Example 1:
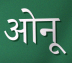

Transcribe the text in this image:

ओनू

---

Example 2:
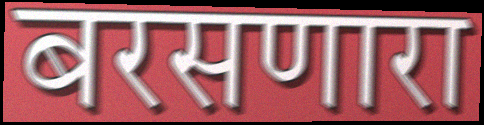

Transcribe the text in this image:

बरसणारा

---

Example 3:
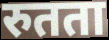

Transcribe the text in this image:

रुतता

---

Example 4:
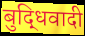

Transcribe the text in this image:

बुद्धिवादी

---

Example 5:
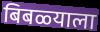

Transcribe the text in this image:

बिबळ्याला